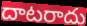
దాటరాదు